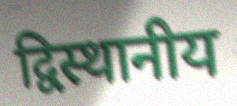
द्विस्थानीय